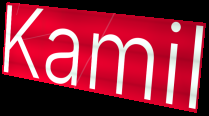
Kamil